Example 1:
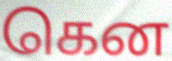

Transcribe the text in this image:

கென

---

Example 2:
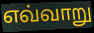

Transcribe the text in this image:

எவ்வாறு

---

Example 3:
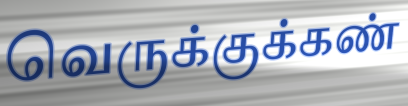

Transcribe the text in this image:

வெருக்குக்கண்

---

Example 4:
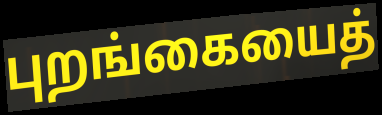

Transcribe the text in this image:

புறங்கையைத்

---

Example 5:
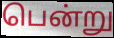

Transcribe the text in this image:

பென்று